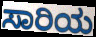
ಸಾರಿಯ